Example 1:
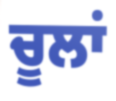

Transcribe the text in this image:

ਚੂਲਾਂ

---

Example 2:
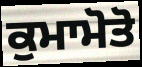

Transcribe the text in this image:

ਕੁਮਾਮੋਤੋ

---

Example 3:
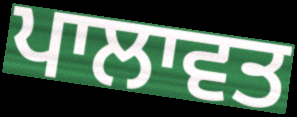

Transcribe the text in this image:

ਪਾਲਾਵਤ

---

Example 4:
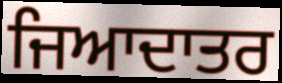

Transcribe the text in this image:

ਜਿਆਦਾਤਰ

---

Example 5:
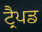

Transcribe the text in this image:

ਟ੍ਰੈਪਡ